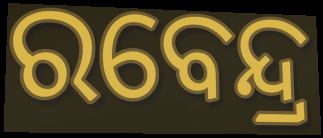
ରବେନ୍ଦ୍ର